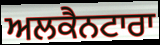
ਅਲਕੈਨਟਾਰਾ